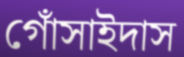
গোঁসাইদাস